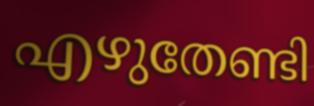
എഴുതേണ്ടി